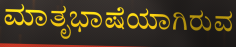
ಮಾತೃಭಾಷೆಯಾಗಿರುವ